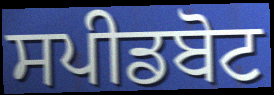
ਸਪੀਡਬੋਟ